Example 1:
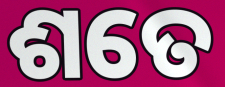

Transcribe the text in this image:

ଶତେ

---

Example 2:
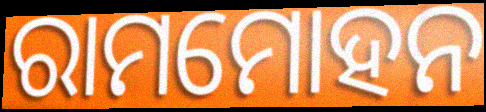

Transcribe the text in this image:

ରାମମୋହନ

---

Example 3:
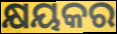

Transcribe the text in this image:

କ୍ଷୟକର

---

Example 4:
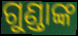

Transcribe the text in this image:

ଗୁଣ୍ଡାଙ୍କ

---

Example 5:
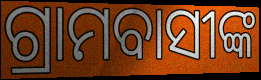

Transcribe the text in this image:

ଗ୍ରାମବାସୀଙ୍କ